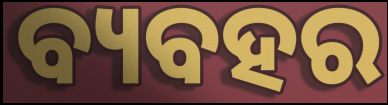
ବ୍ୟବହର